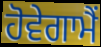
ਹੋਵੇਗਾਮੈਂ